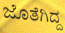
ಜೊತೆಗಿದ್ದ